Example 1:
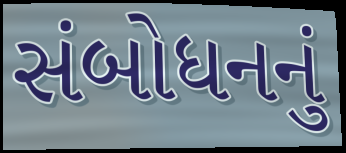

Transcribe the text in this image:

સંબોધનનું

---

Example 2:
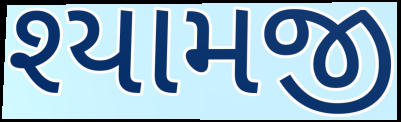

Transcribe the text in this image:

શ્યામજી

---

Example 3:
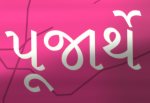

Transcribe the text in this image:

પૂજાર્થે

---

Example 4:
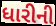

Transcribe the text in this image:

ધારીની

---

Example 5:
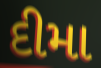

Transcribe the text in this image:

દીમા